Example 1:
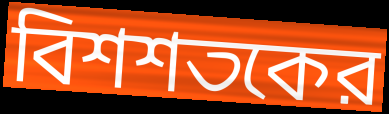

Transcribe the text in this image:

বিশশতকের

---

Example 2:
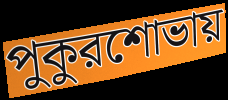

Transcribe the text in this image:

পুকুরশোভায়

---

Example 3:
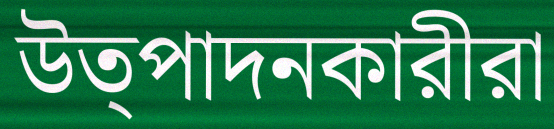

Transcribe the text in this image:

উত্পাদনকারীরা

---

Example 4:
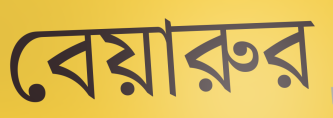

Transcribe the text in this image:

বেয়ারুর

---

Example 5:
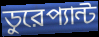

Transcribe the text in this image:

ডুরেপ্যান্ট